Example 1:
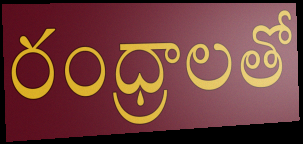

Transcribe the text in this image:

రంధ్రాలతో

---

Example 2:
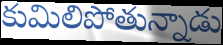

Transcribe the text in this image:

కుమిలిపోతున్నాడు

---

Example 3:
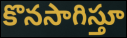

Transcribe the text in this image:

కొనసాగిస్తూ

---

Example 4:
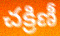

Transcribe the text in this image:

చక్రిణీ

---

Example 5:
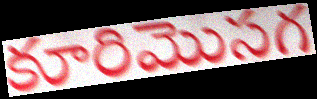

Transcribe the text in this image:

కూరిమొసగ